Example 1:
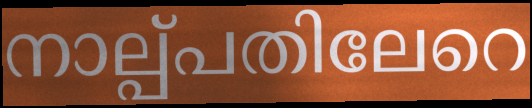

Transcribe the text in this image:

നാല്പ്പതിലേറെ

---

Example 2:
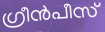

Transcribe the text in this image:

ഗ്രീൻപീസ്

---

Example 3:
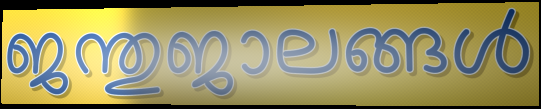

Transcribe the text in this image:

ജന്തുജാലങ്ങൾ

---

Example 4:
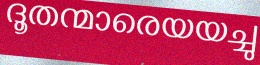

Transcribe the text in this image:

ദൂതന്മാരെയയച്ചു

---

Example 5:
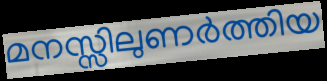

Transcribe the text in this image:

മനസ്സിലുണർത്തിയ